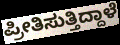
ಪ್ರೀತಿಸುತ್ತಿದ್ದಾಳೆ